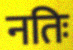
नतिः